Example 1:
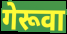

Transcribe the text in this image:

गेरूवा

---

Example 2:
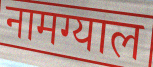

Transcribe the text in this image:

नामग्याल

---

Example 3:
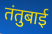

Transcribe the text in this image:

तंतुबाई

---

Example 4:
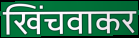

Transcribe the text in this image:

खिंचवाकर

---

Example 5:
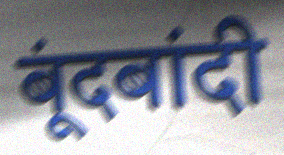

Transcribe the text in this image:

बूंदबांदी